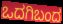
ಒದಗಿಬಂದ